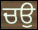
ਚਉ